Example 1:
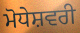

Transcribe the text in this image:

ਮੋਧੇਸ਼ਵਰੀ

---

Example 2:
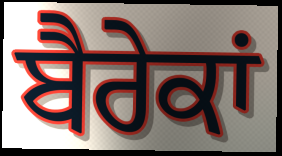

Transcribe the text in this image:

ਬੈਰੇਕਾਂ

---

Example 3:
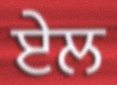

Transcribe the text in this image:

ਏਲ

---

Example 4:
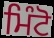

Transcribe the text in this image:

ਮਿੰਟੋ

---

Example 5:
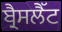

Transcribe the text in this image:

ਬ੍ਰੈਸਲੈੱਟ